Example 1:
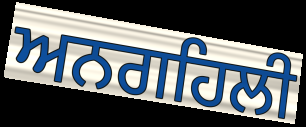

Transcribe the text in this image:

ਅਨਗਹਿਲੀ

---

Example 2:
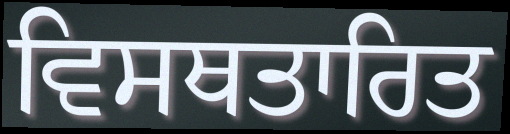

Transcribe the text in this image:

ਵਿਸਥਤਾਰਿਤ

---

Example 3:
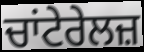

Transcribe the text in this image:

ਚਾਂਟੇਰੇਲਜ਼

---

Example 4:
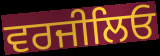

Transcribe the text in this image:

ਵਰਜੀਲਿਓ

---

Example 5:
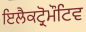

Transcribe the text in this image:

ਇਲੈਕਟ੍ਰੋਮੌਟਿਵ